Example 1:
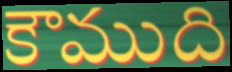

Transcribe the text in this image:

కౌముది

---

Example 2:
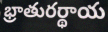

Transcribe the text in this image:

భ్రాతురర్థాయ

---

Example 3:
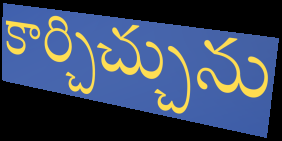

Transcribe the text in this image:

కార్చిచ్చును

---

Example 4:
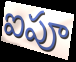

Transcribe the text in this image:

ఐపూ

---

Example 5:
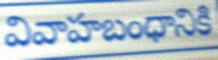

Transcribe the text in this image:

వివాహబంధానికి